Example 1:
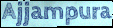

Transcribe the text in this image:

Ajjampura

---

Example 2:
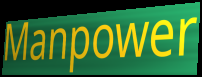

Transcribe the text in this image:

Manpower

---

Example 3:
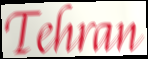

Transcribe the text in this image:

Tehran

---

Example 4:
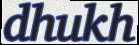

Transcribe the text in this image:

dhukh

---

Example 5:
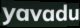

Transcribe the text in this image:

yavadu